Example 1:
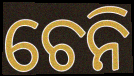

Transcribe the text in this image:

ଚେନି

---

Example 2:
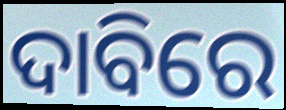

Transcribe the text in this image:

ଦାବିରେ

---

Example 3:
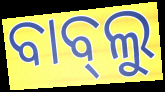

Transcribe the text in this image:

ବାବ୍‍ଲୁ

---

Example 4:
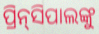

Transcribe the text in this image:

ପ୍ରିନ୍‌ସିପାଲଙ୍କୁ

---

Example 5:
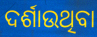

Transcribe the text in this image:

ଦର୍ଶାଉଥିବା